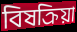
বিষক্ৰিয়া